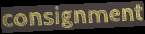
consignment